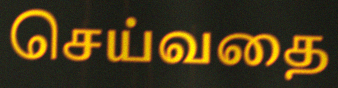
செய்வதை